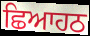
ਛਿਆਹਠ